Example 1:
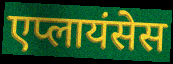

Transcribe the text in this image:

एप्लायंसेस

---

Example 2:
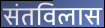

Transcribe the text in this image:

संतविलास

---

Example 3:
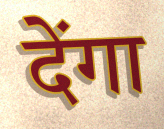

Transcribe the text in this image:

देंगा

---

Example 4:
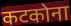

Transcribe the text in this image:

कटकोना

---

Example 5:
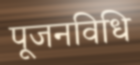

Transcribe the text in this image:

पूजनविधि